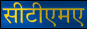
सीटीएमए